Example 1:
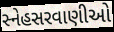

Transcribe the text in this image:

સ્નેહસરવાણીઓ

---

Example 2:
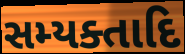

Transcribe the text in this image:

સમ્યક્તાદિ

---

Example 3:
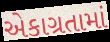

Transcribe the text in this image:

એકાગ્રતામાં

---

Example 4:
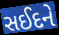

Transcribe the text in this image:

સઈદને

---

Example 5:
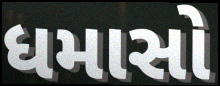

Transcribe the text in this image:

ધમાસો